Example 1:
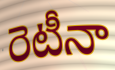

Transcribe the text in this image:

రెటీనా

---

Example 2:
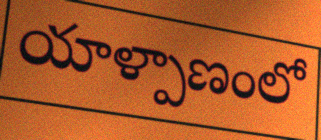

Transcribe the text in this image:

యాళ్పాణంలో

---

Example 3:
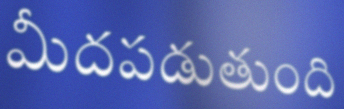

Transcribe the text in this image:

మీదపడుతుంది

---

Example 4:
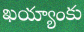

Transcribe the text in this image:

ఖయ్యాంకు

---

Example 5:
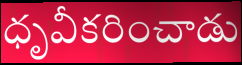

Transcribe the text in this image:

ధృవీకరించాడు